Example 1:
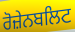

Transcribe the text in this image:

ਰੋਜ਼ੇਨਬਲਿਟ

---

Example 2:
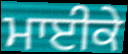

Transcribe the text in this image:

ਮਾਈਕੇ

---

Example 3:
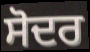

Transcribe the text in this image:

ਸੋਦਰ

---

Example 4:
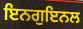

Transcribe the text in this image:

ਇਨਗੁਇਨਲ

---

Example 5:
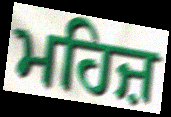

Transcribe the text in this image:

ਮਹਿਜ਼